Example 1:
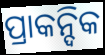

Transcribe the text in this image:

ପ୍ରାକନ୍ଦିକ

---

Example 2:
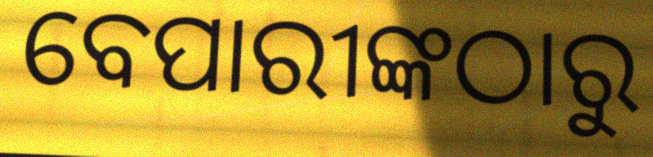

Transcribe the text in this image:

ବେପାରୀଙ୍କଠାରୁ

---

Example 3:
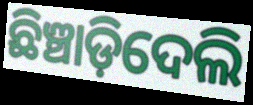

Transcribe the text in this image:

ଛିଞ୍ଚାଡ଼ିଦେଲି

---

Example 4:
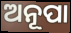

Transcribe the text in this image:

ଅନୂପା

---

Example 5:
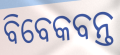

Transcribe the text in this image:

ବିବେକବନ୍ତ